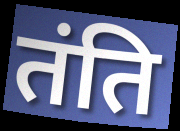
तंति